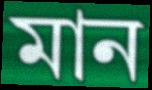
মান